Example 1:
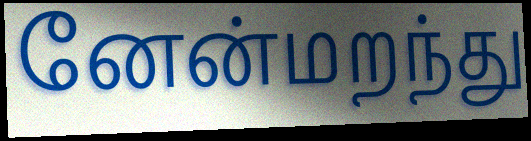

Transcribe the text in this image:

னேன்மறந்து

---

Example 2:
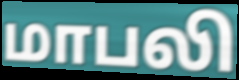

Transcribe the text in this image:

மாபலி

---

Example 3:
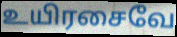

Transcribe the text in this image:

உயிரசைவே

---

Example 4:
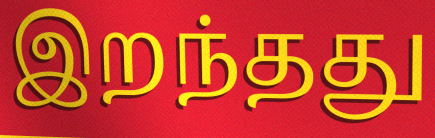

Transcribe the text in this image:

இறந்தது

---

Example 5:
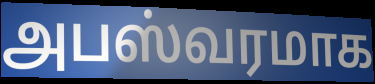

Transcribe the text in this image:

அபஸ்வரமாக